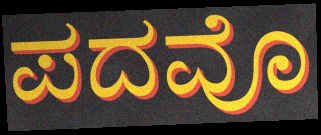
ಪದವೊ